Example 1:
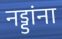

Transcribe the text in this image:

नड्डांना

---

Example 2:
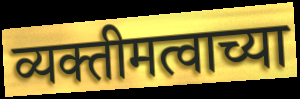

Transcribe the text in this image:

व्यक्तीमत्वाच्या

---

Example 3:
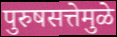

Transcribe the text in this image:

पुरुषसत्तेमुळे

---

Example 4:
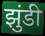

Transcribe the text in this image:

झुंडी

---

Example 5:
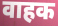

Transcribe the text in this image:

वाहक